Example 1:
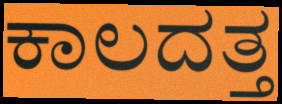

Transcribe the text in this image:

ಕಾಲದತ್ತ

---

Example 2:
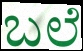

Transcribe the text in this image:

ಬಲೆ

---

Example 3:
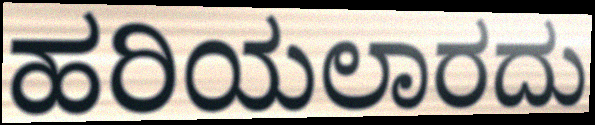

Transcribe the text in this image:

ಹರಿಯಲಾರದು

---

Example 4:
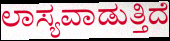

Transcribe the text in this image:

ಲಾಸ್ಯವಾಡುತ್ತಿದೆ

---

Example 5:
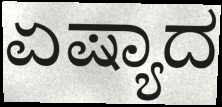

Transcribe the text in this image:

ಏಷ್ಯಾದ